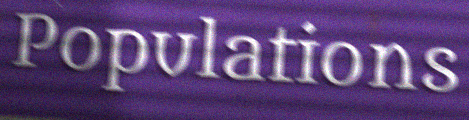
Populations